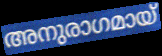
അനുരാഗമായ്